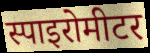
स्पाइरोमीटर